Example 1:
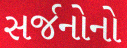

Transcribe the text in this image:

સર્જનોનો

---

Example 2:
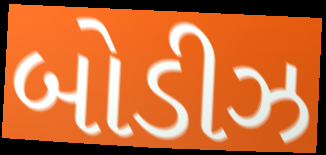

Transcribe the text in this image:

બોડીઝ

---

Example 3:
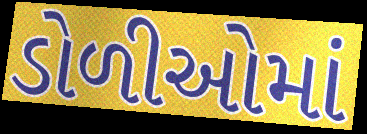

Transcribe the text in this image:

ડોળીઓમાં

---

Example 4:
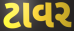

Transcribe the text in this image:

ટાવર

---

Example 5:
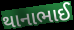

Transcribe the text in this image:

થાનાભાઈ